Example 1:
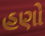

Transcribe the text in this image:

હણો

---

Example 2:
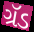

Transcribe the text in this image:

ગ્રૅડ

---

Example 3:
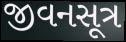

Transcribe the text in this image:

જીવનસૂત્ર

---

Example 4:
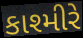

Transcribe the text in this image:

કાશ્મીરે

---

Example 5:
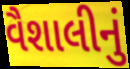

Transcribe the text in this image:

વૈશાલીનું